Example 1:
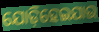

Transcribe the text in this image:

ଯୋଡ଼ିହେଇଯାଉ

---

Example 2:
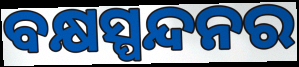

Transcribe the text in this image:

ବକ୍ଷସ୍ପନ୍ଦନର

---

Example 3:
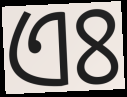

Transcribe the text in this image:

ଏଃ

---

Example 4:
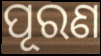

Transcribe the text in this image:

ପୂରଣ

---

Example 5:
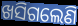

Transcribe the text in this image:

ଖସିଗଲେଣି